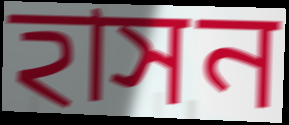
হাসন